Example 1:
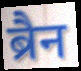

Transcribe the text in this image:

ब्रैन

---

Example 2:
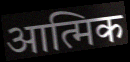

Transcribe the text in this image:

आत्मिक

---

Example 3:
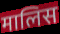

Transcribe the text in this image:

मालिस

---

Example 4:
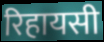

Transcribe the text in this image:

रिहायसी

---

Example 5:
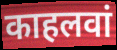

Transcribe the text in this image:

काहलवां